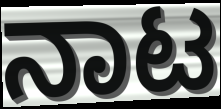
ನಾಟ